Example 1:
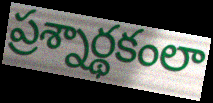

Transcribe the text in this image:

ప్రశ్నార్థకంలా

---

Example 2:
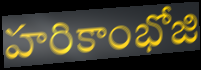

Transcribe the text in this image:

హరికాంభోజి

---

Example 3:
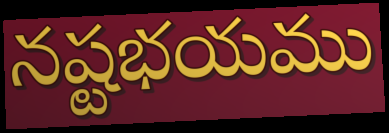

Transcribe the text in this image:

నష్టభయము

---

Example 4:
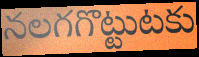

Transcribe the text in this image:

నలగగొట్టుటకు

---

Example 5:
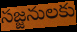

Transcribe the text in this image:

సజ్జనులకు